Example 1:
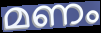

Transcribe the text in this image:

മണം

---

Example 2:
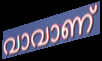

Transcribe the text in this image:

വാവാണ്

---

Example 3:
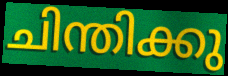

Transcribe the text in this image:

ചിന്തിക്കു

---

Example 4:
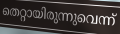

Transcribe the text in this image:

തെറ്റായിരുന്നുവെന്ന്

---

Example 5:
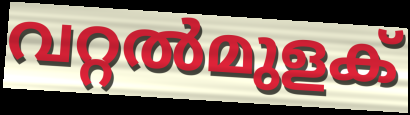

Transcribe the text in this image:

വറ്റൽമുളക്